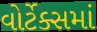
વોર્ટેક્સમાં